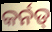
କର୍ନଡ୍